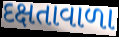
દક્ષતાવાળા